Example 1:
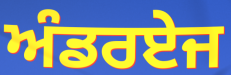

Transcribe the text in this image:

ਅੰਡਰਏਜ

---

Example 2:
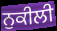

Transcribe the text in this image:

ਨੁਕੀਲੀ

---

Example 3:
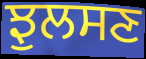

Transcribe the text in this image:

ਝੁਲਸਣ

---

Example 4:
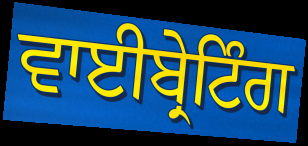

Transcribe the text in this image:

ਵਾਈਬ੍ਰੇਟਿੰਗ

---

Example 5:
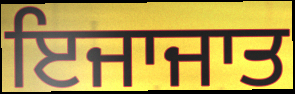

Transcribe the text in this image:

ਇਜਾਜਾਤ